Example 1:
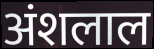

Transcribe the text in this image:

अंशलाल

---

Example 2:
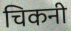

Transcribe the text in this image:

चिकनी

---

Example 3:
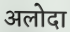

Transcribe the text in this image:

अलोदा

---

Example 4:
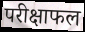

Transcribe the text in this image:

परीक्षाफल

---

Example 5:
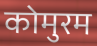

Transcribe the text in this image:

कोमुरम